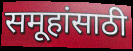
समूहांसाठी